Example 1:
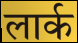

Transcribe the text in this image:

लार्क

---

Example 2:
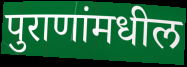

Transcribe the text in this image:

पुराणांमधील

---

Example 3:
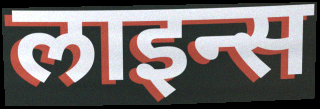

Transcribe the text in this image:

लाइन्स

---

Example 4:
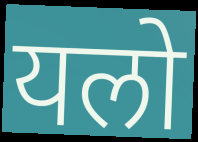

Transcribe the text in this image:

यलो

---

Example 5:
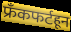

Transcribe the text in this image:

फ्रँकफर्टहून